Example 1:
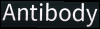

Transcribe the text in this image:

Antibody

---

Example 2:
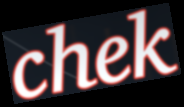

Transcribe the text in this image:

chek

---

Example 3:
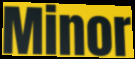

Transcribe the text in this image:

Minor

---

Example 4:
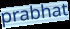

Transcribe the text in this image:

prabhat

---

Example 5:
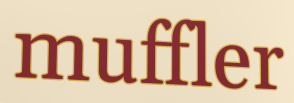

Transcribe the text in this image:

muffler